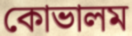
কোভালম